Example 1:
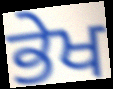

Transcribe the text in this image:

ਭੇਖ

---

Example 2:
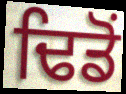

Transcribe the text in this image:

ਢਿਡੋਂ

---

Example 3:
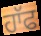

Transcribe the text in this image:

ਹਾੱਫ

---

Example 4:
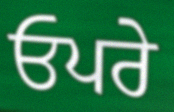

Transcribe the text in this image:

ਓਪਰੇ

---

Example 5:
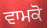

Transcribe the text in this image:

ਵਾਮਕੋ